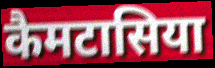
कैमटासिया